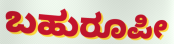
ಬಹುರೂಪೀ